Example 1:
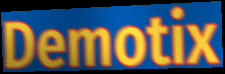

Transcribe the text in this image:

Demotix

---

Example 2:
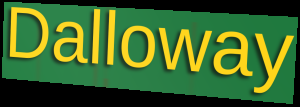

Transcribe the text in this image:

Dalloway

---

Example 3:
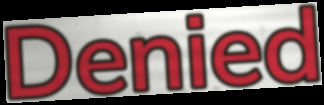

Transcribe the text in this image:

Denied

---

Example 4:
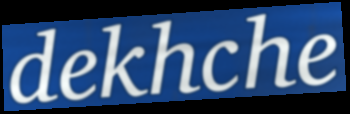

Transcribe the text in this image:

dekhche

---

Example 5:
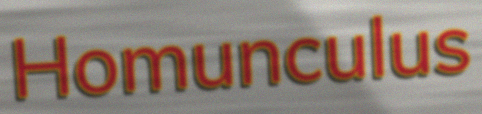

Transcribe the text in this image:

Homunculus